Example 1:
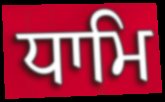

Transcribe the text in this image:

ਧਾਮਿ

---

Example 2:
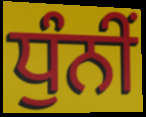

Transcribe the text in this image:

ਧੁੰਨੀਂ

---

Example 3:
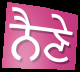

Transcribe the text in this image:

ਨੈਣੇ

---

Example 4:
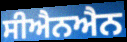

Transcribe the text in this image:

ਸੀਐਨਐਨ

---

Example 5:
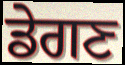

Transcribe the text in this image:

ਡੇਗਣ